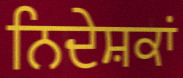
ਨਿਦੇਸ਼ਕਾਂ